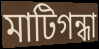
মাটিগন্ধা